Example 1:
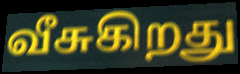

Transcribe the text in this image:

வீசுகிறது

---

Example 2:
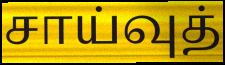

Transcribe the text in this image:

சாய்வுத்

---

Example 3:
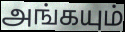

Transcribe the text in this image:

அங்கயும்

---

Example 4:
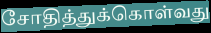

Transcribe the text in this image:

சோதித்துக்கொள்வது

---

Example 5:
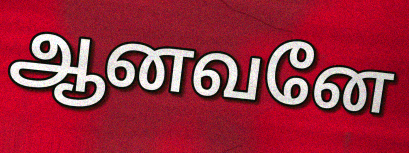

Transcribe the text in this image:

ஆனவனே